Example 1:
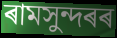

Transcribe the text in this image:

ৰামসুন্দৰৰ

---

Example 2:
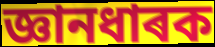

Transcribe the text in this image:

জ্ঞানধাৰক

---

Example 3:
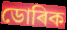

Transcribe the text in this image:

ডোৰিক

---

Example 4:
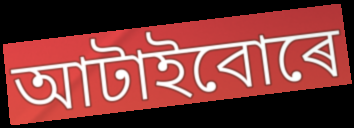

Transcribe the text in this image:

আটাইবোৰে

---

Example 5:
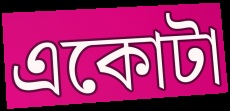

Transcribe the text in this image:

একোটা